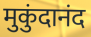
मुकुंदानंद